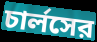
চার্লসের